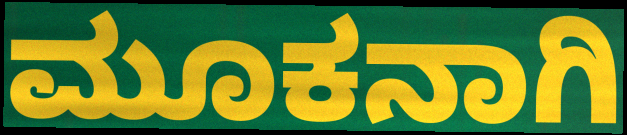
ಮೂಕನಾಗಿ